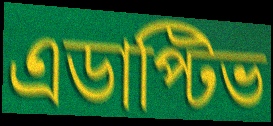
এডাপ্টিভ